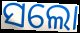
ସଲୋ